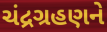
ચંદ્રગ્રહણને